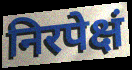
निरपेक्षं